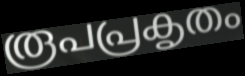
രൂപപ്രകൃതം